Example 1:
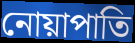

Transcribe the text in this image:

নোয়াপাতি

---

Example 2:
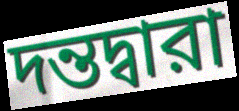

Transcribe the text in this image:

দন্তদ্বারা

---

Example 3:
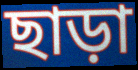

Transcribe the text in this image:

ছাড়া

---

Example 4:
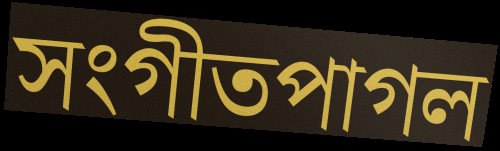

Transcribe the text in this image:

সংগীতপাগল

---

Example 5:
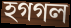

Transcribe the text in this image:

হগগল